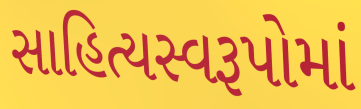
સાહિત્યસ્વરૂપોમાં